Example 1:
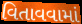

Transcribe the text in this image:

વિતાવવામાં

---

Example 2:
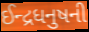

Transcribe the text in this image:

ઈન્દ્રધનુષની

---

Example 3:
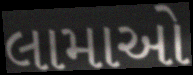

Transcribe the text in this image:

લામાઓ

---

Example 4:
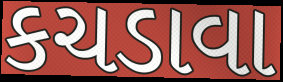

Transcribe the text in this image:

કચડાવા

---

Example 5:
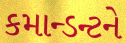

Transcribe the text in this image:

કમાન્ડન્ટને